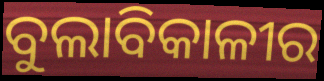
ବୁଲାବିକାଳୀର